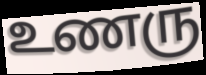
உணரு